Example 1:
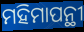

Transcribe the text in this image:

ମହିମାପନ୍ଥୀ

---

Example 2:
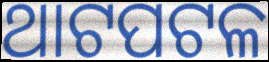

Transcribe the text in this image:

ଥାଟପଟଳ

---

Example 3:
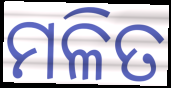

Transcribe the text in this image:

ମଳିତ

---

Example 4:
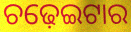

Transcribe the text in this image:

ଚଢ଼େଇଟାର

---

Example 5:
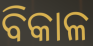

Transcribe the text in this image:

ବିକାଳ